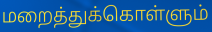
மறைத்துக்கொள்ளும்